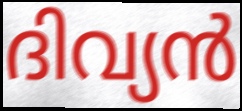
ദിവ്യൻ